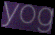
yog